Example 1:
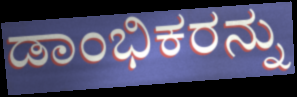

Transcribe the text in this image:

ಡಾಂಭಿಕರನ್ನು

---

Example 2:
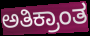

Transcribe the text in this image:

ಅತಿಕ್ರಾಂತ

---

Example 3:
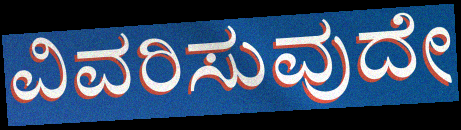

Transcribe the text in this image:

ವಿವರಿಸುವುದೇ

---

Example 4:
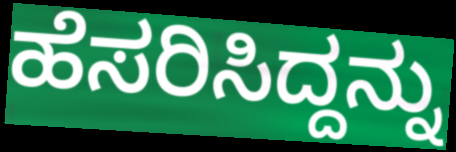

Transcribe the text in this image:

ಹೆಸರಿಸಿದ್ದನ್ನು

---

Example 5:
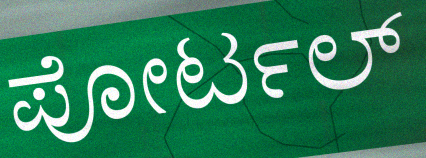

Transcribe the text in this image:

ಪೋರ್ಟಲ್